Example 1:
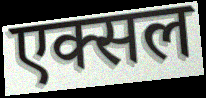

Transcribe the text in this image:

एक्सल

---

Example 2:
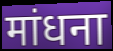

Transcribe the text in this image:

मांधना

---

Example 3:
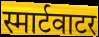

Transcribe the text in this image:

स्मार्टवाटर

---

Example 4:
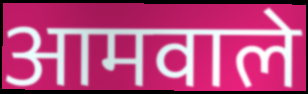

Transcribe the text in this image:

आमवाले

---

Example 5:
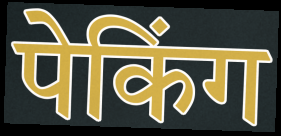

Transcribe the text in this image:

पेकिंग